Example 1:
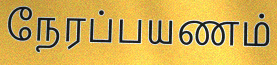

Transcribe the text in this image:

நேரப்பயணம்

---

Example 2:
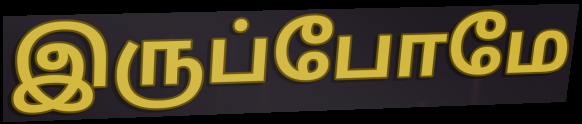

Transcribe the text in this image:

இருப்போமே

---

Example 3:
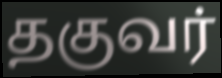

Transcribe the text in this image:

தகுவர்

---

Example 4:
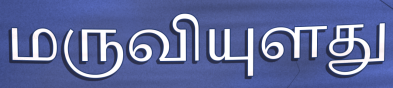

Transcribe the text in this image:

மருவியுளது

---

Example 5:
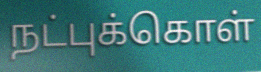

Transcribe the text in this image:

நட்புக்கொள்